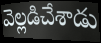
వెల్లడిచేశాడు